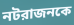
নটরাজনকে